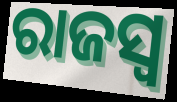
ରାଜସ୍ୱ